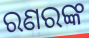
ରଣରଙ୍କ